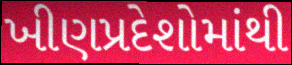
ખીણપ્રદેશોમાંથી